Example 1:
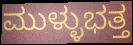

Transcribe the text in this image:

ಮುಳ್ಳುಭತ್ತ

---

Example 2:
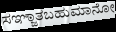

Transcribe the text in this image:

ಸಞ್ಜಾತಬಹುಮಾನೋ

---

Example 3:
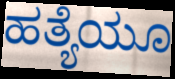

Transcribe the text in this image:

ಹತ್ಯೆಯೂ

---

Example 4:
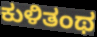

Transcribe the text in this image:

ಕುಳಿತಂಥ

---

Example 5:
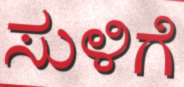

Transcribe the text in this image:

ಸುಳಿಗೆ